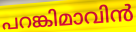
പറങ്കിമാവിൻ